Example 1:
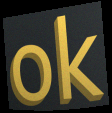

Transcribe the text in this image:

ok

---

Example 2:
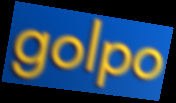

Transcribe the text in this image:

golpo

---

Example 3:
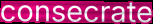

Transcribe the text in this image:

consecrate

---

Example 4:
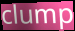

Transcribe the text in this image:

clump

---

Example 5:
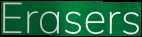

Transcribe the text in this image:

Erasers